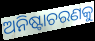
ଅନିଷ୍ଟାଚରଣକୁ